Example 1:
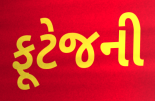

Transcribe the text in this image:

ફૂટેજની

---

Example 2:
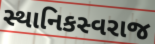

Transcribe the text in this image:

સ્થાનિકસ્વરાજ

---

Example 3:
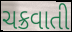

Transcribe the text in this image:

ચક્રવાતી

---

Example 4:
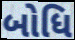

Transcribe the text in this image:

બોધિ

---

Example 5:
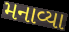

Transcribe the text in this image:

મનાવ્યા